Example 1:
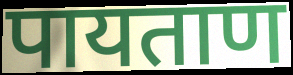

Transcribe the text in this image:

पायताण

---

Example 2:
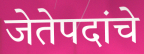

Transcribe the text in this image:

जेतेपदांचे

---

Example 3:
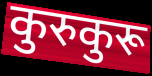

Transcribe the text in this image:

कुरुकुरू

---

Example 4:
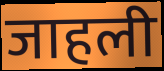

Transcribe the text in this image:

जाहली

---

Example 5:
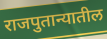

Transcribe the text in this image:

राजपुतान्यातील